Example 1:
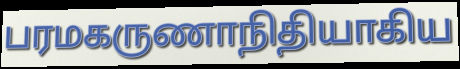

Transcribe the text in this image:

பரமகருணாநிதியாகிய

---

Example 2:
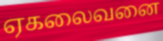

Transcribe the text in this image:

ஏகலைவனை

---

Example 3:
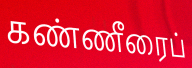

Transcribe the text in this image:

கண்ணீரைப்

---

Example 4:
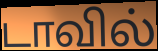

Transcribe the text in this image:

டாவில்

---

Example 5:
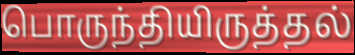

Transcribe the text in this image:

பொருந்தியிருத்தல்